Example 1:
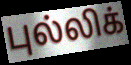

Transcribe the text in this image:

புல்லிக்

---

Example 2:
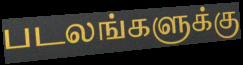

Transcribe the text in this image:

படலங்களுக்கு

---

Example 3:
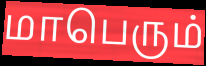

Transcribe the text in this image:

மாபெரும்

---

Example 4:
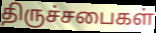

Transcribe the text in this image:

திருச்சபைகள்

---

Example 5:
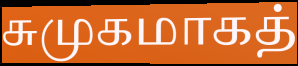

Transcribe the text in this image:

சுமுகமாகத்